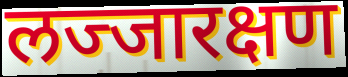
लज्जारक्षण